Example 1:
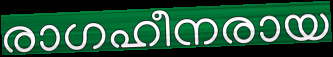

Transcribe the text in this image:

രാഗഹീനരായ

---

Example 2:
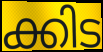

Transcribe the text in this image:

ക്കിട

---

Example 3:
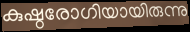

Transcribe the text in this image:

കുഷ്ഠരോഗിയായിരുന്നു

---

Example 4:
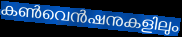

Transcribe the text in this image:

കൺവെൻഷനുകളിലും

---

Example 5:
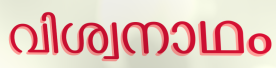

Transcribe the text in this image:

വിശ്വനാഥം